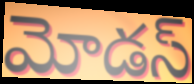
మోడస్